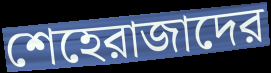
শেহেরাজাদের